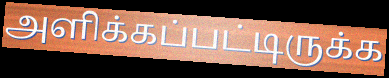
அளிக்கப்பட்டிருக்க